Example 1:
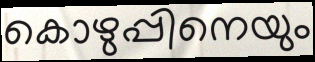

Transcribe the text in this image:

കൊഴുപ്പിനെയും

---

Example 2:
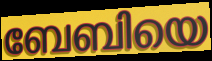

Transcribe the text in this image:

ബേബിയെ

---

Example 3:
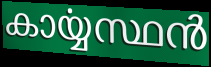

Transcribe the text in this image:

കാൎയ്യസ്ഥൻ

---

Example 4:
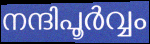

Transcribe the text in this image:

നന്ദിപൂർവ്വം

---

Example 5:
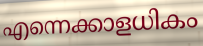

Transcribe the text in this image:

എന്നെക്കാളധികം